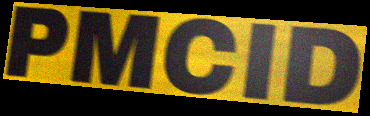
PMCID